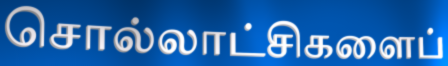
சொல்லாட்சிகளைப்